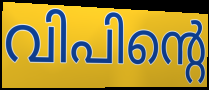
വിപിന്റെ